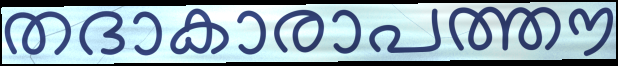
തദാകാരാപത്തൗ